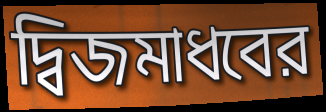
দ্বিজমাধবের